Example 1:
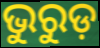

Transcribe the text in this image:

ଭୁରୁଡ଼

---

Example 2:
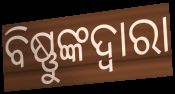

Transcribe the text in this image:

ବିଷ୍ଣୁଙ୍କଦ୍ୱାରା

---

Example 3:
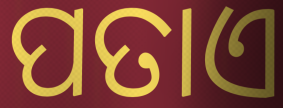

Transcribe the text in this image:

ପତାଏ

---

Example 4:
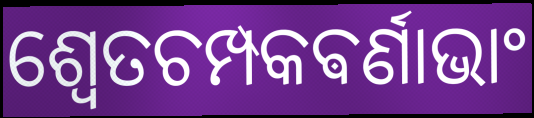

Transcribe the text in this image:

ଶ୍ଵେତଚମ୍ପକଵର୍ଣାଭାଂ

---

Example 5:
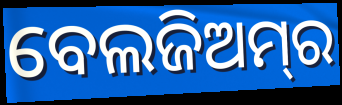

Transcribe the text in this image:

ବେଲଜିଅମ୍‌ର